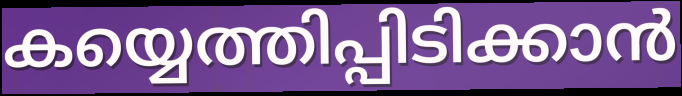
കയ്യെത്തിപ്പിടിക്കാൻ